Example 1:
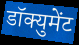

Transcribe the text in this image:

डॉक्युमेंट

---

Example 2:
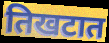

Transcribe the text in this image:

तिखटात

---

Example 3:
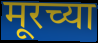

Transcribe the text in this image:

मूरच्या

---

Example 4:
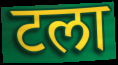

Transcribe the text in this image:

टला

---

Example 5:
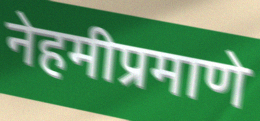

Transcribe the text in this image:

नेहमीप्रमाणे